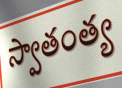
స్వాతంత్య